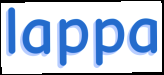
lappa